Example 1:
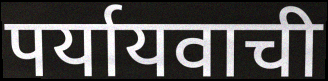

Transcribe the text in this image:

पर्यायवाची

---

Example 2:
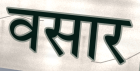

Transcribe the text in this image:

वसार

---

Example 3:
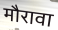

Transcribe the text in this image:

मौरावा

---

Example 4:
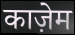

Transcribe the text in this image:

काज़ेम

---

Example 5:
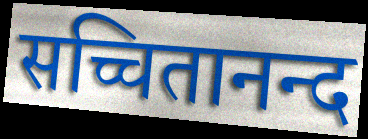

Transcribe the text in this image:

सच्चितानन्द